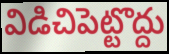
విడిచిపెట్టొద్దు